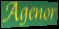
Agenor